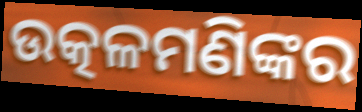
ଉତ୍କଳମଣିଙ୍କର